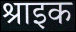
श्राइक